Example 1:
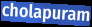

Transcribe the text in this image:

cholapuram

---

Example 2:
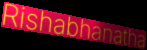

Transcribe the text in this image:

Rishabhanatha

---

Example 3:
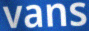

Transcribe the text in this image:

vans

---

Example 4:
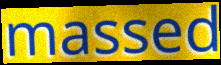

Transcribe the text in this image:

massed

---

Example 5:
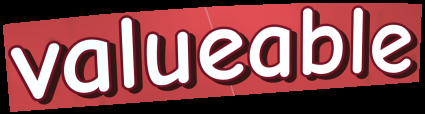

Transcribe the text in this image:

valueable